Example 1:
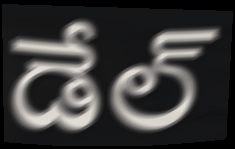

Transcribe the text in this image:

డేల్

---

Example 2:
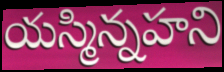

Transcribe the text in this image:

యస్మిన్నహని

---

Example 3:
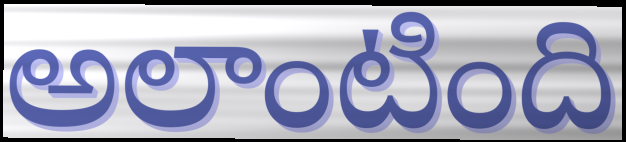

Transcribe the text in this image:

అలాంటింది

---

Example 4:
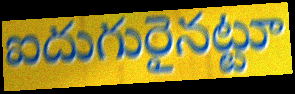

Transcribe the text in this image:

ఐదుగురైనట్టూ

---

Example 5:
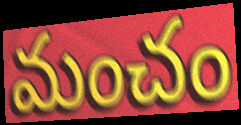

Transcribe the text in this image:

మంచం